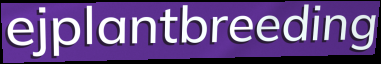
ejplantbreeding